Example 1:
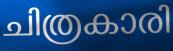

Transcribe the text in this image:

ചിത്രകാരി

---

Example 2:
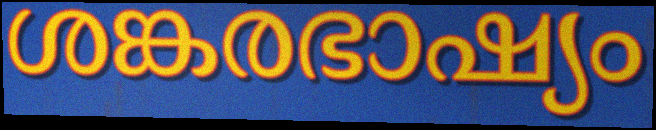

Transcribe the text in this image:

ശങ്കരഭാഷ്യം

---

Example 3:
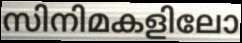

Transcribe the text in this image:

സിനിമകളിലോ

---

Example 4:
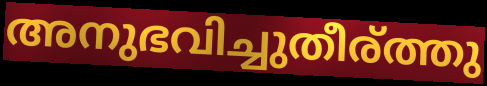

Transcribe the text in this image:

അനുഭവിച്ചുതീര്ത്തു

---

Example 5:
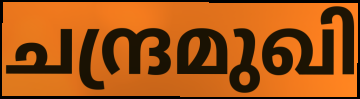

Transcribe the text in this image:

ചന്ദ്രമുഖി